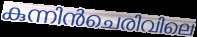
കുന്നിൻചെരിവിലെ